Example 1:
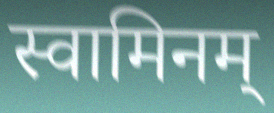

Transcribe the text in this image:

स्वामिनम्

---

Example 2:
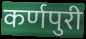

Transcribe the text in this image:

कर्णपुरी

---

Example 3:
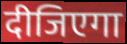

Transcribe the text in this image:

दीजिएगा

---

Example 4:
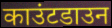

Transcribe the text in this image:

काउंटडाउन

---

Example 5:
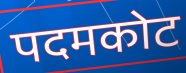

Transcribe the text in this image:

पदमकोट